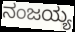
ನಂಜಯ್ಯ